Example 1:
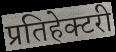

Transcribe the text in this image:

प्रतिहेक्टरी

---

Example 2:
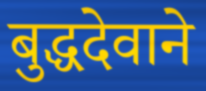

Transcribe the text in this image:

बुद्धदेवाने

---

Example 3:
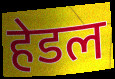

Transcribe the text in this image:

हेडल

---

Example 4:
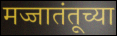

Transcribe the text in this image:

मज्जातंतूच्या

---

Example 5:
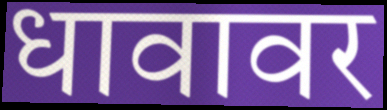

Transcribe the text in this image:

धावावर